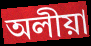
অলীয়া